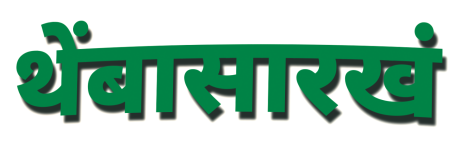
थेंबासारखं